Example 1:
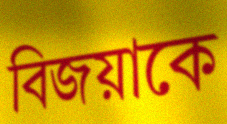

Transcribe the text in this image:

বিজয়াকে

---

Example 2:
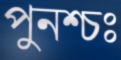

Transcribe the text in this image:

পুনশ্চঃ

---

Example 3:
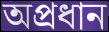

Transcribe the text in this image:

অপ্রধান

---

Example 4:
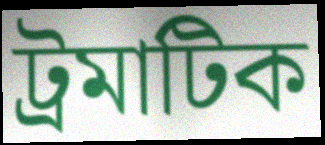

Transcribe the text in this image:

ট্রমাটিক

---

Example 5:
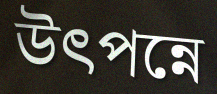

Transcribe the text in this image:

উৎপন্নে